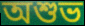
অশুভ